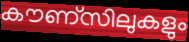
കൗണ്സിലുകളും